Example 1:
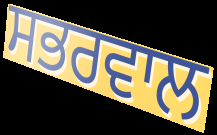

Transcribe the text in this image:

ਸਭਰਵਾਲ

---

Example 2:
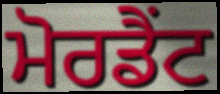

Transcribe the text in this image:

ਮੋਰਡੈਂਟ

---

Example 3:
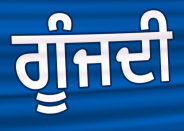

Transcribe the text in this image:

ਗੂੰਜਦੀ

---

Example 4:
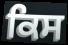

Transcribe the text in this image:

ਕਿਸ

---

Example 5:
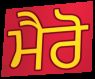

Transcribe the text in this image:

ਮੈਰੋ